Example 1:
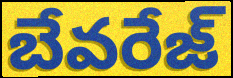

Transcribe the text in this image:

బేవరేజ్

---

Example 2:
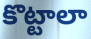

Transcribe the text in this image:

కొట్టాలా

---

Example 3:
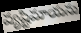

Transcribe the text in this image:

వ్యష్టిమాయను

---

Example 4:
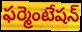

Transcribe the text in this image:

ఫర్మెంటేషన్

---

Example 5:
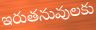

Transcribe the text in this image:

ఇరుతనువులకు